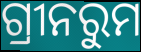
ଗ୍ରୀନରୁମ